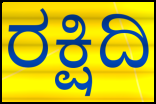
ರಕ್ಷಿದಿ